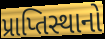
પ્રાપ્તિસ્થાનો